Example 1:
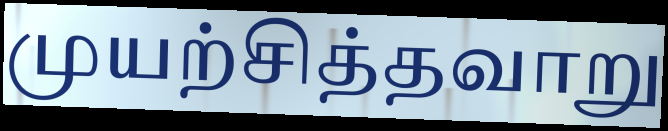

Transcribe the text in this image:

முயற்சித்தவாறு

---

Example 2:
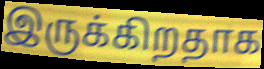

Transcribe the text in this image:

இருக்கிறதாக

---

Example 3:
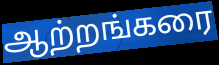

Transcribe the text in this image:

ஆற்றங்கரை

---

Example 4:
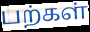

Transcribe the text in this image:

பற்கள்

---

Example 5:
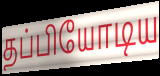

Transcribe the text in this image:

தப்பியோடிய